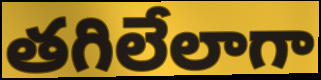
తగిలేలాగా